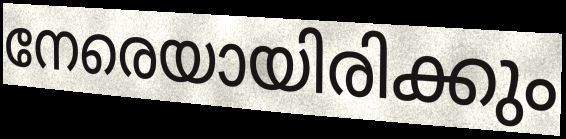
നേരെയായിരിക്കും